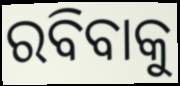
ରବିବାକୁ